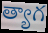
త్యాగ